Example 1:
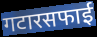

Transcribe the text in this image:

गटारसफाई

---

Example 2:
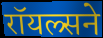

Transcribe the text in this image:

रॉयल्सने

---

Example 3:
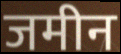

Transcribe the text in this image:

जमीन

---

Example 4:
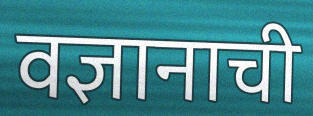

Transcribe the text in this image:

वज्ञानाची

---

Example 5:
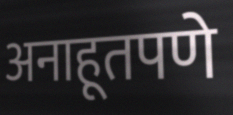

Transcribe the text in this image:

अनाहूतपणे